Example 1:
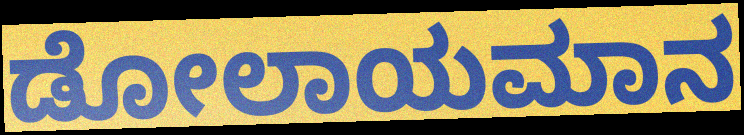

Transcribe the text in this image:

ಡೋಲಾಯಮಾನ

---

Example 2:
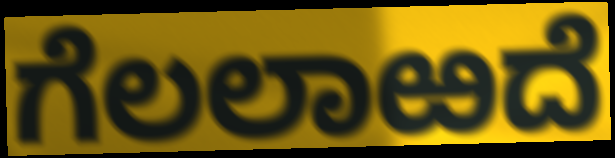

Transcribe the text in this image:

ಗೆಲಲಾಱದೆ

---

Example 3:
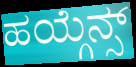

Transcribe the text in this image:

ಹಯ್ಗೆನ್ಸ್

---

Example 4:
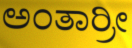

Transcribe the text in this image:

ಅಂತಾರ್ರೀ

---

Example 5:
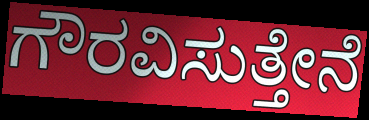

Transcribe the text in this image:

ಗೌರವಿಸುತ್ತೇನೆ